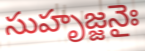
సుహృజ్జనైః